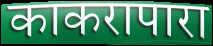
काकरापारा